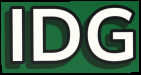
IDG